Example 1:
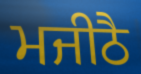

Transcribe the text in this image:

ਮਜੀਠੈ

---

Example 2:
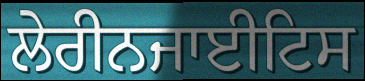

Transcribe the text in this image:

ਲੇਰੀਨਜਾਈਟਿਸ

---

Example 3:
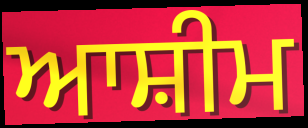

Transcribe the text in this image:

ਆਸ਼ੀਮ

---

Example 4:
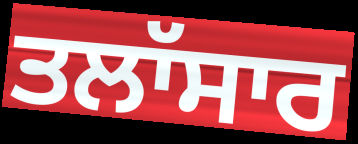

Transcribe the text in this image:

ਤਲਾੱਸਾਰ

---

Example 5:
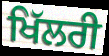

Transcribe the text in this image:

ਖਿੱਲਰੀ